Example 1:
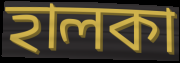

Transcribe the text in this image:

হালকা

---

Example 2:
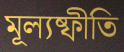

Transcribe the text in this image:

মূল্যষ্ফীতি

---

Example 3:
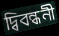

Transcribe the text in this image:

দ্বিবন্ধনী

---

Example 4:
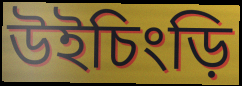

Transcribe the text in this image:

উইচিংড়ি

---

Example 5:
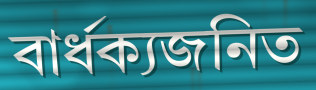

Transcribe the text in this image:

বার্ধক্যজনিত